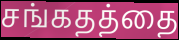
சங்கதத்தை